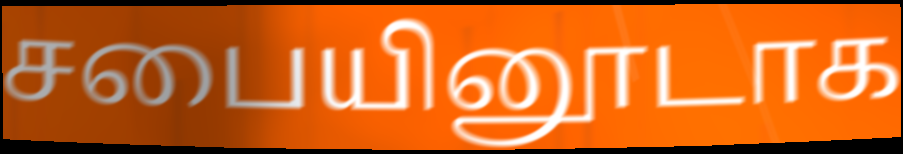
சபையினூடாக